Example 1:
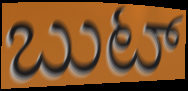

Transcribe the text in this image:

ಬುಟ್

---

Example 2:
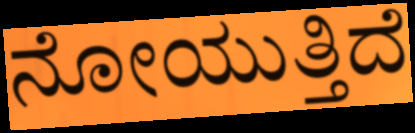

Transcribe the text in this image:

ನೋಯುತ್ತಿದೆ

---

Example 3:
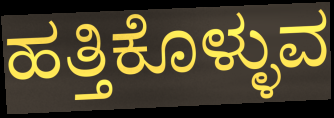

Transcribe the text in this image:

ಹತ್ತಿಕೊಳ್ಳುವ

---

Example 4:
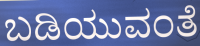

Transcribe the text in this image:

ಬಡಿಯುವಂತೆ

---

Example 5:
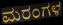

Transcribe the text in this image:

ಮರಂಗಳ